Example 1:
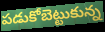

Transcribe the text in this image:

పడుకోబెట్టుకున్న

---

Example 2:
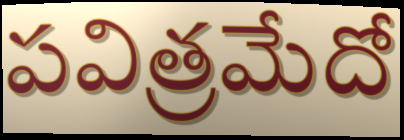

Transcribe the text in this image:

పవిత్రమేదో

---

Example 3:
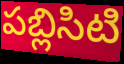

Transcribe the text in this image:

పబ్లిసిటి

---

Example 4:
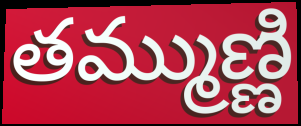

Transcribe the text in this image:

తమ్ముణ్ణి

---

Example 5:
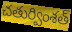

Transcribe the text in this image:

చతుర్వింశత్